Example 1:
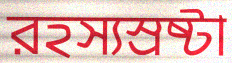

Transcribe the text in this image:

রহস্যস্রষ্টা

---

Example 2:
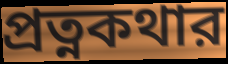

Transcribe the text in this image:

প্রত্নকথার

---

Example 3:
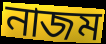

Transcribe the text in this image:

নাজম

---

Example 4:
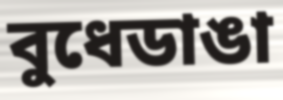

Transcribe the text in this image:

বুধেডাঙা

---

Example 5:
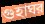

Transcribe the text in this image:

গুহাঘর